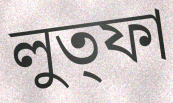
লুত্ফা